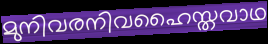
മുനിവരനിവഹൈസ്തവാഥ